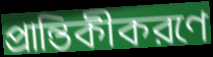
প্রান্তিকীকরণে